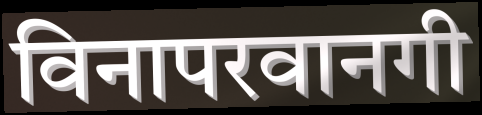
विनापरवानगी